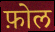
फ़ोल